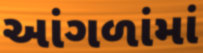
આંગળાંમાં